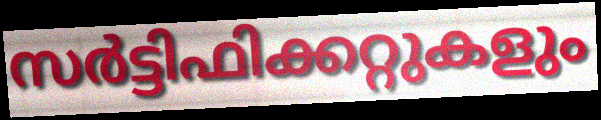
സർട്ടിഫിക്കറ്റുകളും